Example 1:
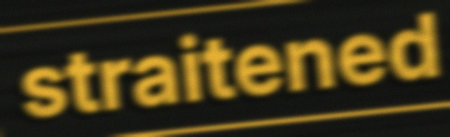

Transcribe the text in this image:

straitened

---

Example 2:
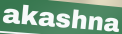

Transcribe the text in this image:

akashna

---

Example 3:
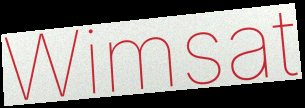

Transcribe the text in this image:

Wimsat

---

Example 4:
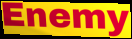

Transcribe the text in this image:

Enemy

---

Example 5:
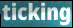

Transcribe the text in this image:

ticking